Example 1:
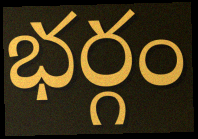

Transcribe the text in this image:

భర్గం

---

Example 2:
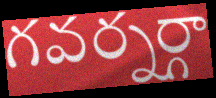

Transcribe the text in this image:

గవర్నర్గా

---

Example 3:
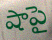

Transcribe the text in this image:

షాపై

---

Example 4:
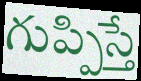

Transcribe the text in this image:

గుప్పిస్తే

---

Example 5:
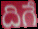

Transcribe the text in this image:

దిగే